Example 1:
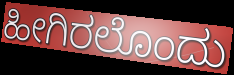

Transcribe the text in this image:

ಹೀಗಿರಲೊಂದು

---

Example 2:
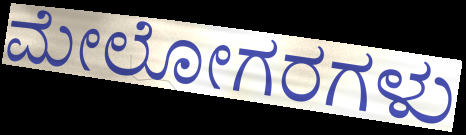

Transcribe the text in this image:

ಮೇಲೋಗರಗಳು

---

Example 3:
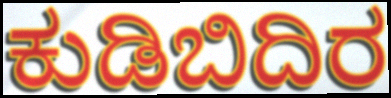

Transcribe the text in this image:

ಕುಡಿಬಿದಿರ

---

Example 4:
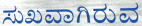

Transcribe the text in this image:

ಸುಖವಾಗಿರುವ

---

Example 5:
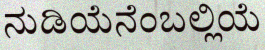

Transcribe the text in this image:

ನುಡಿಯೆನೆಂಬಲ್ಲಿಯೆ